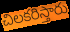
చిలకరిస్తారు